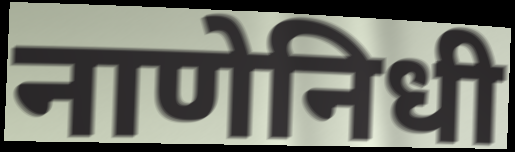
नाणेनिधी